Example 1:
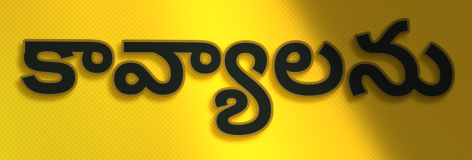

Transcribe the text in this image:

కావ్యాలను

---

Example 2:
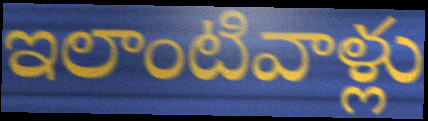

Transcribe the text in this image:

ఇలాంటివాళ్లు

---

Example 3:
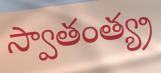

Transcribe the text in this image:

స్వాతంత్య్ర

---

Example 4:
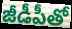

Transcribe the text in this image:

జీడీపీతో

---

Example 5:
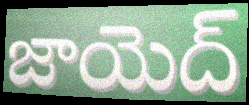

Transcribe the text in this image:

జాయెద్